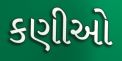
કણીઓ